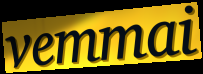
vemmai